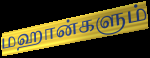
மஹான்களும்